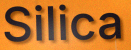
Silica